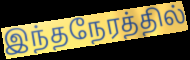
இந்தநேரத்தில்